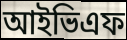
আইভিএফ